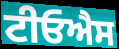
ਟੀਓਐਸ